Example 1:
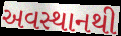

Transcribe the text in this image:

અવસ્થાનથી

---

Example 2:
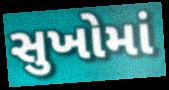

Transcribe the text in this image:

સુખોમાં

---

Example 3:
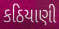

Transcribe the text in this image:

કઠિયાણી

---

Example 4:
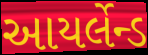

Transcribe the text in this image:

આયર્લેન્ડ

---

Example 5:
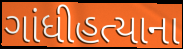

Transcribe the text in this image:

ગાંધીહત્યાના